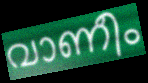
വാണീം